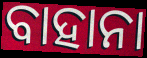
ବାହାନା